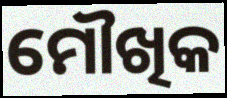
ମୌଖିକ